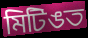
মিটিঙত